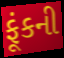
ફૂંકની